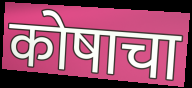
कोषाचा